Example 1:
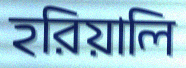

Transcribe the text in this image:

হরিয়ালি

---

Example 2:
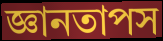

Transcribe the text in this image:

জ্ঞানতাপস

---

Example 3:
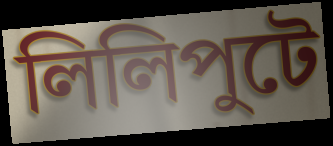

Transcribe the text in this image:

লিলিপুটে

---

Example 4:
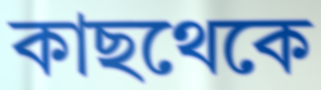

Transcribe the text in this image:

কাছথেকে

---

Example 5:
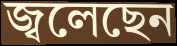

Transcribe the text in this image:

জ্বলেছেন